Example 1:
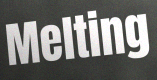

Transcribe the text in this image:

Melting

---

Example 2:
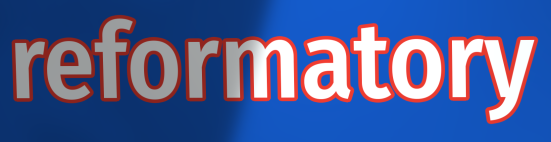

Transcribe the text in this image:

reformatory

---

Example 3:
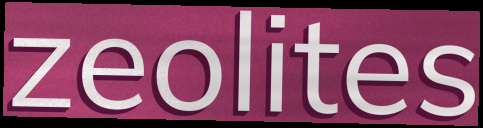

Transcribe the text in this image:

zeolites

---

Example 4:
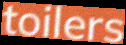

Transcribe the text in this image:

toilers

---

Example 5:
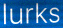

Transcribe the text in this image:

lurks